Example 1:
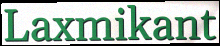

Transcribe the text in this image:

Laxmikant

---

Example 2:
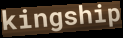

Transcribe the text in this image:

kingship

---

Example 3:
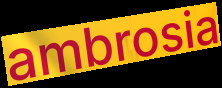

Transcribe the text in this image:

ambrosia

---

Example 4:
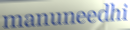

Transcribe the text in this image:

manuneedhi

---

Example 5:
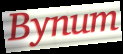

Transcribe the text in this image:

Bynum